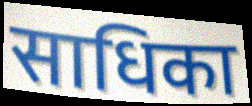
साधिका